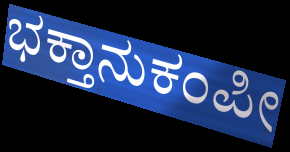
ಭಕ್ತಾನುಕಂಪೀ